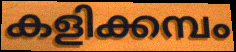
കളിക്കമ്പം